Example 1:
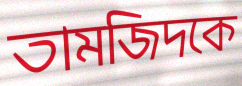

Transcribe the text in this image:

তামজিদকে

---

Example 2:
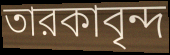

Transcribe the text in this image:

তারকাবৃন্দ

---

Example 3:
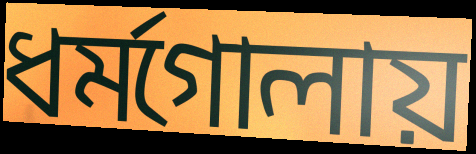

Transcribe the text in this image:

ধর্মগোলায়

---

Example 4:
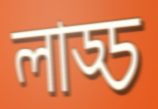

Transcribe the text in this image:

লাড্ড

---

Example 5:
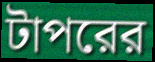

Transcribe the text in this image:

টাপরের